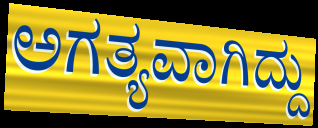
ಅಗತ್ಯವಾಗಿದ್ದು